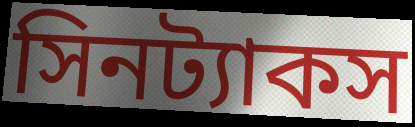
সিনট্যাকস